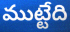
ముట్టేది